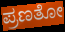
ಪ್ರಣತೋ